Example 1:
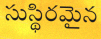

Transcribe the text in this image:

సుస్థిరమైన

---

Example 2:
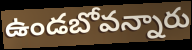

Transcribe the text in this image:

ఉండబోవన్నారు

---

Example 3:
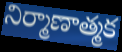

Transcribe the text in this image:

నిర్మాణాత్మక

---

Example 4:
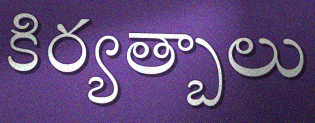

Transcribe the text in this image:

కిర్యత్బాలు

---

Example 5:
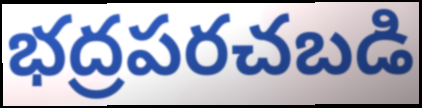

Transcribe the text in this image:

భద్రపరచబడి